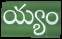
య్యం